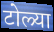
टोल्या